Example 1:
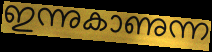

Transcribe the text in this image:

ഇന്നുകാണുന്ന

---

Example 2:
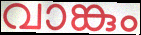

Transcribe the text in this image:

വാങ്കും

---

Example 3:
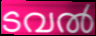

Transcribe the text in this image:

ടവൽ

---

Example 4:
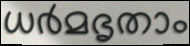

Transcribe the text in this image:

ധർമഭൃതാം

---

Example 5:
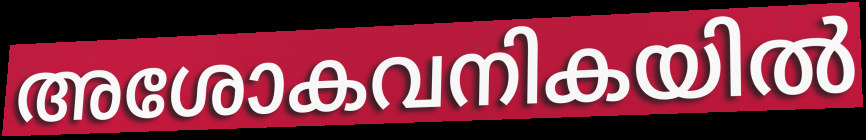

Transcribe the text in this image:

അശോകവനികയിൽ